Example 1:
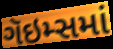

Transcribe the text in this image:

ગૅઇમ્સમાં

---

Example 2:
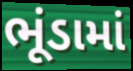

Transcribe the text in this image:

ભૂંડામાં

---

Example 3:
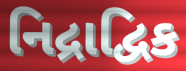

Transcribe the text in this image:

નિદ્રાદ્વિક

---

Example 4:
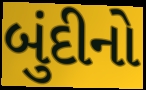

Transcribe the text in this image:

બુંદીનો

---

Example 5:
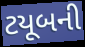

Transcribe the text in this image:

ટયૂબની